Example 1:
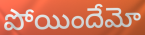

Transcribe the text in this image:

పోయిందేమో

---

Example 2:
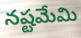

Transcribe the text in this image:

నష్టమేమి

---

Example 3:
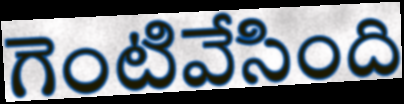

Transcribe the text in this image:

గెంటివేసింది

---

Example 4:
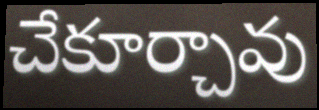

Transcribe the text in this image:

చేకూర్చావు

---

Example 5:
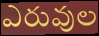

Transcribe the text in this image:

ఎరువుల